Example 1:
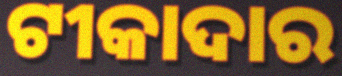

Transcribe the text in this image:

ଟୀକାଦାର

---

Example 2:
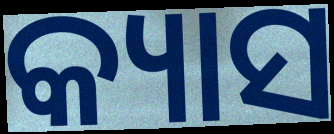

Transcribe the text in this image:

କ୍ୟାସ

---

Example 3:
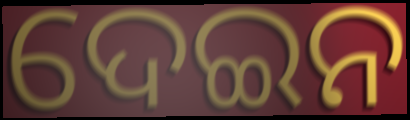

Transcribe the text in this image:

ଦେଇନ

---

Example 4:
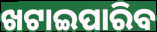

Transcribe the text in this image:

ଖଟାଇପାରିବ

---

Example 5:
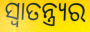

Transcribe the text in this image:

ସ୍ଵାତନ୍ତ୍ର୍ୟର